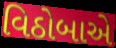
વિઠોબાએ